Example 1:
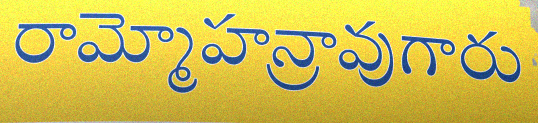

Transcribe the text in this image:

రామ్మోహన్రావుగారు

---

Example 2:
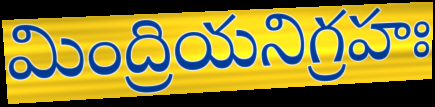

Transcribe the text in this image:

మింద్రియనిగ్రహః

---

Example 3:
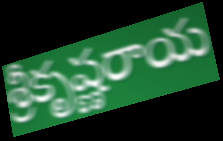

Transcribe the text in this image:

శ్రీకృష్ణరాయ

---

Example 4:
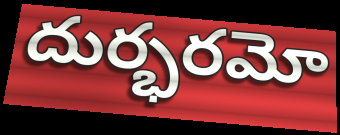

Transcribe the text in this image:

దుర్భరమో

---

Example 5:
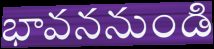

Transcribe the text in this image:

భావననుండి